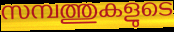
സമ്പത്തുകളുടെ